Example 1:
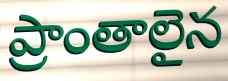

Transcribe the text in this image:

ప్రాంతాలైన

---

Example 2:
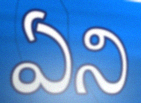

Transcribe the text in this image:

ఏని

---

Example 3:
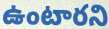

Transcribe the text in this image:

ఉంటారని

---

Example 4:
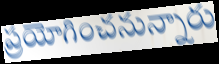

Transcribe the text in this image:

ప్రయోగించనున్నారు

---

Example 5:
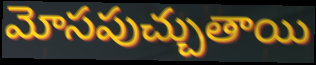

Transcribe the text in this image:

మోసపుచ్చుతాయి